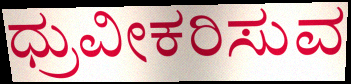
ಧ್ರುವೀಕರಿಸುವ